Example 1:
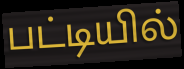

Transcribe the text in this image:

பட்டியில்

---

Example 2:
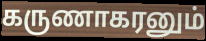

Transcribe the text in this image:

கருணாகரனும்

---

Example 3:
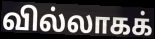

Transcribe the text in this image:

வில்லாகக்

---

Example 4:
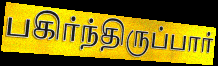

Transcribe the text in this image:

பகிர்ந்திருப்பார்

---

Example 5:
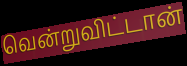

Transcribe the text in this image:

வென்றுவிட்டான்